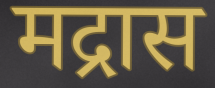
मद्रास